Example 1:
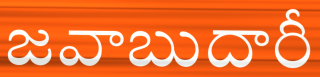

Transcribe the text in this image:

జవాబుదారీ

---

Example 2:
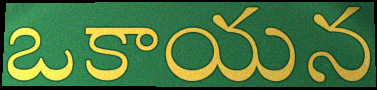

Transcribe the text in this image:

ఒకాయన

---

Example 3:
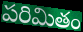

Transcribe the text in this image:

పరిమితం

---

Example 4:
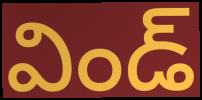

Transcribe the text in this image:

విండ్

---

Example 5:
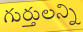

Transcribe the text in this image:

గుర్తులన్ని